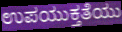
ಉಪಯುಕ್ತತೆಯು